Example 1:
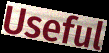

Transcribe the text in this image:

Useful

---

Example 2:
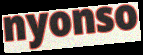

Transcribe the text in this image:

nyonso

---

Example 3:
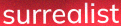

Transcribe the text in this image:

surrealist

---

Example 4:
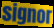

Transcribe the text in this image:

signor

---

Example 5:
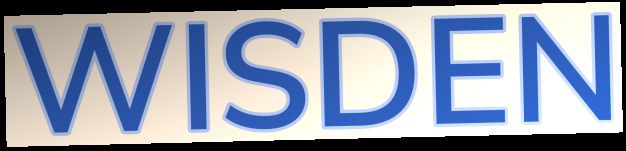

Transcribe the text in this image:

WISDEN